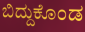
ಬಿದ್ದುಕೊಂಡ